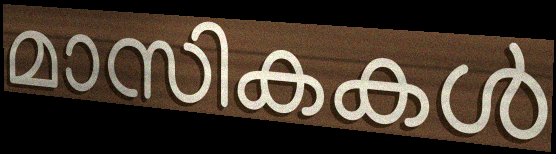
മാസികകൾ